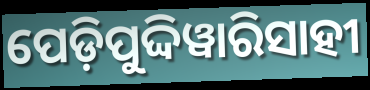
ପେଡ଼ିପୁଦ୍ଦିୱାରିସାହୀ